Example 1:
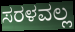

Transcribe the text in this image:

ಸರಳವಲ್ಲ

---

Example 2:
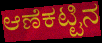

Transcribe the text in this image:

ಆಣೆಕಟ್ಟಿನ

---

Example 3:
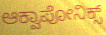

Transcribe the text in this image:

ಆಕ್ವಾಪೋನಿಕ್ಸ್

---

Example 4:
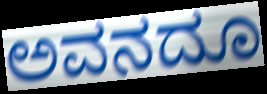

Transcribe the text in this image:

ಅವನದೂ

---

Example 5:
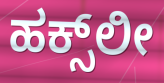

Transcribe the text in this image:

ಹಕ್ಸ್‌ಲೀ